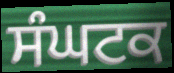
ਸੰਘਟਕ